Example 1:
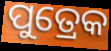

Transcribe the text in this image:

ପୁତ୍ରେକ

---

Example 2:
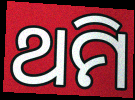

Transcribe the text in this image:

ଥମି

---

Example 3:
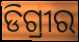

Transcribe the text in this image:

ଡିଗ୍ରୀର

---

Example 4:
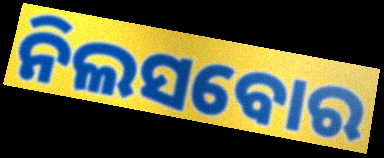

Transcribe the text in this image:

ନିଲସବୋର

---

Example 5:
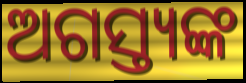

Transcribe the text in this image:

ଅଗସ୍ତ୍ୟଙ୍କ